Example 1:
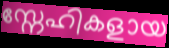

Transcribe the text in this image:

സ്നേഹികളായ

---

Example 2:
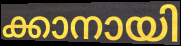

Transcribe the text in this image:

ക്കാനായി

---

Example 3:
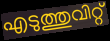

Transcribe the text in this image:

എടുത്തുവിറ്റ്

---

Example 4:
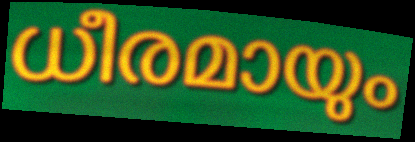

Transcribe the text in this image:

ധീരമായും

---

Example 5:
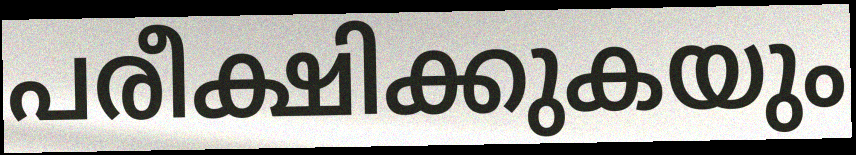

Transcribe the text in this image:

പരീക്ഷിക്കുകയും